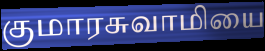
குமாரசுவாமியை